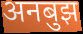
अनबुझ